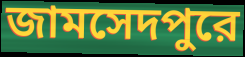
জামসেদপুরে